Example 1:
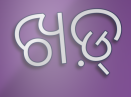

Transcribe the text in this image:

ଖଡ଼୍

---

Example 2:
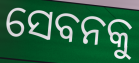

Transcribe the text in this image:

ସେବନକୁ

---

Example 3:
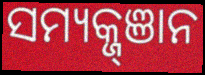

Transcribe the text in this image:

ସମ୍ୟକ୍ଜ୍ଞାନ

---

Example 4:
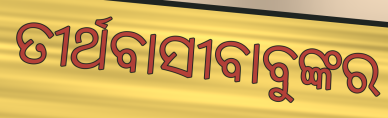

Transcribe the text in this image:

ତୀର୍ଥବାସୀବାବୁଙ୍କର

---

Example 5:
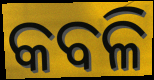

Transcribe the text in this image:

କବଳି